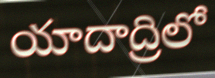
యాదాద్రిలో